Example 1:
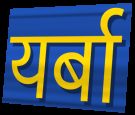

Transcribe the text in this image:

यर्बा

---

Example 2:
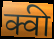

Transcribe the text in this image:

क्वी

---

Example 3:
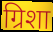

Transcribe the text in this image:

ग्रिशा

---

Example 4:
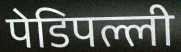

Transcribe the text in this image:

पेडिपल्ली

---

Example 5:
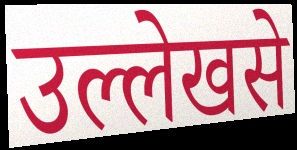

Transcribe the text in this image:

उल्लेखसे